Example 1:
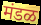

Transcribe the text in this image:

मंडळ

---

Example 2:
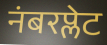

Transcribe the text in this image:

नंबरप्लेट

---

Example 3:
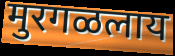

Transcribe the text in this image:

मुरगळलाय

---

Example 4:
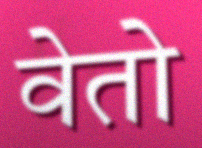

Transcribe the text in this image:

वेतो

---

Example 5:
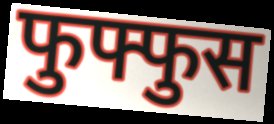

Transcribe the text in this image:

फुफ्फुस